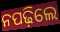
ନପଢ଼ିଲେ